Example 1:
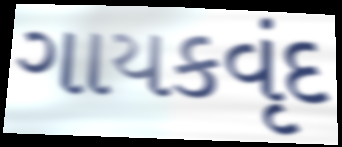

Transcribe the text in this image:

ગાયકવૃંદ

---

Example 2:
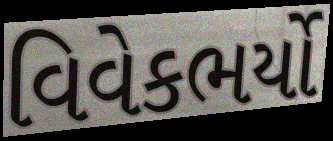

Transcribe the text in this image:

વિવેકભર્યો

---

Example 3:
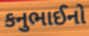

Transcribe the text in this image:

કનુભાઈનો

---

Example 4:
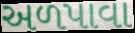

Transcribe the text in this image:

અળપાવા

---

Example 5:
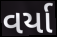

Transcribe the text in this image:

વર્યા